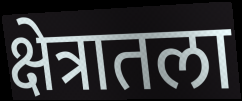
क्षेत्रातला